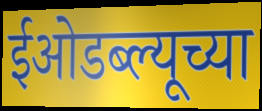
ईओडब्ल्यूच्या